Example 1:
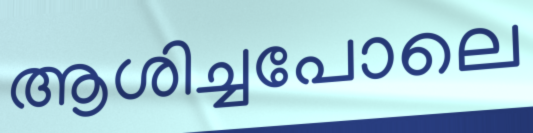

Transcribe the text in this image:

ആശിച്ചപോലെ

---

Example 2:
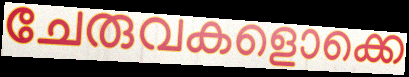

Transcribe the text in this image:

ചേരുവകളൊക്കെ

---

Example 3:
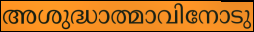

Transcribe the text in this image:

അശുദ്ധാത്മാവിനോടു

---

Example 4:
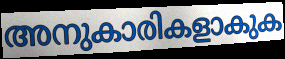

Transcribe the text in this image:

അനുകാരികളാകുക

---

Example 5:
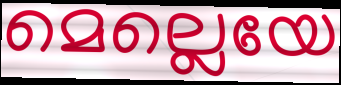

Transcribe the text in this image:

മെല്ലെയേ